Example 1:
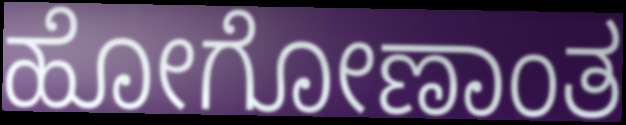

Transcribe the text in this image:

ಹೋಗೋಣಾಂತ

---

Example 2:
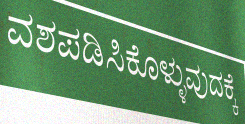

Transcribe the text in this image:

ವಶಪಡಿಸಿಕೊಳ್ಳುವುದಕ್ಕೆ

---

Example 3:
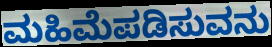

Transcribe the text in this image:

ಮಹಿಮೆಪಡಿಸುವನು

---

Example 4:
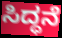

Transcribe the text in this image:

ಸಿದ್ಧನೆ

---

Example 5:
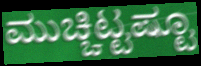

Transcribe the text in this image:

ಮುಚ್ಚಿಟ್ಟಷ್ಟೂ